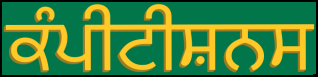
ਕੰਪੀਟੀਸ਼ਨਸ